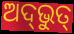
ଅଦ୍‌ଭୁତ୍